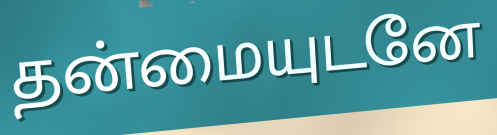
தன்மையுடனே